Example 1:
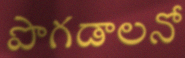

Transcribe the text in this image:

పొగడాలనో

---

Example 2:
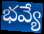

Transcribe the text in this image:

భవ్యే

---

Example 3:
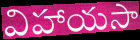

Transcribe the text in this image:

విహాయసా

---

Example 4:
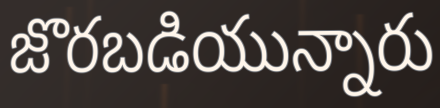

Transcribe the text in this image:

జొరబడియున్నారు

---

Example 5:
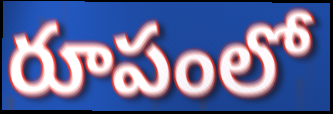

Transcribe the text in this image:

రూపంలో